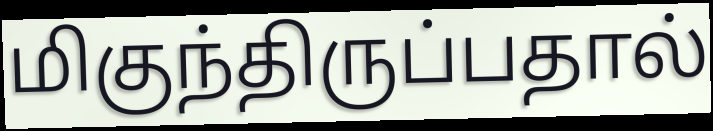
மிகுந்திருப்பதால்